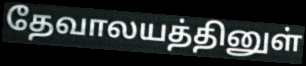
தேவாலயத்தினுள்